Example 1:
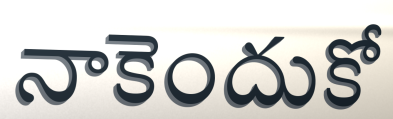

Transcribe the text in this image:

నాకెందుకో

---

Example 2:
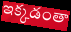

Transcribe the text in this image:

ఇక్కడంతా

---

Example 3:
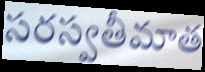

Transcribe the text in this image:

సరస్వతీమాత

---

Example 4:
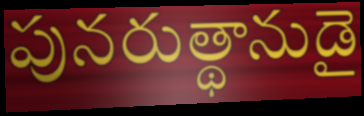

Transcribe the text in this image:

పునరుత్థానుడై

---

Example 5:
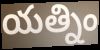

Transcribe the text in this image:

యత్నిం